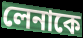
লেনাকে